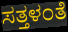
ಸತ್ತಳಂತೆ